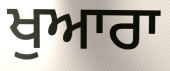
ਖੁਆਰਾ